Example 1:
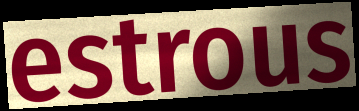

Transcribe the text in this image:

estrous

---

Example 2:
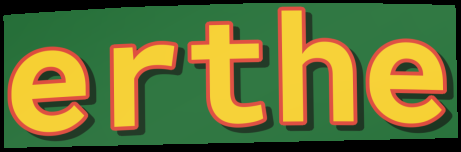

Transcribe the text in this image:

erthe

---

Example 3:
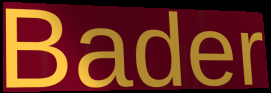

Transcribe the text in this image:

Bader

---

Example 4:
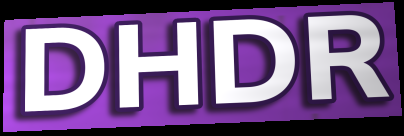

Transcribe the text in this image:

DHDR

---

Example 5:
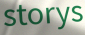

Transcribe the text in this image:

storys